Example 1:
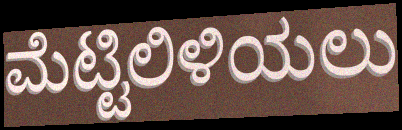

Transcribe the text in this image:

ಮೆಟ್ಟಿಲಿಳಿಯಲು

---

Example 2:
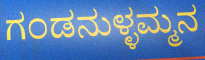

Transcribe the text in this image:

ಗಂಡನುಳ್ಳಮ್ಮನ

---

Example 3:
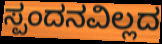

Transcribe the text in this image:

ಸ್ಪಂದನವಿಲ್ಲದ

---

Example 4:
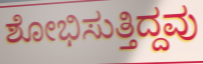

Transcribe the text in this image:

ಶೋಭಿಸುತ್ತಿದ್ದವು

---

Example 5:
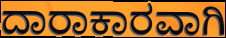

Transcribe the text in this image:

ದಾರಾಕಾರವಾಗಿ